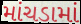
માંચડામાં